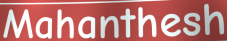
Mahanthesh